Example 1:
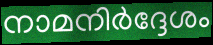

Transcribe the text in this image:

നാമനിർദ്ദേശം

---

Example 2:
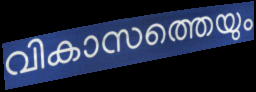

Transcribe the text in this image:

വികാസത്തെയും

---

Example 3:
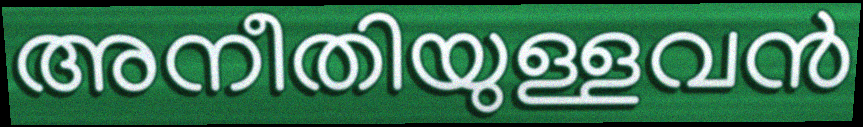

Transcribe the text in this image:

അനീതിയുള്ളവൻ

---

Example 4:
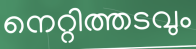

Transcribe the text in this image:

നെറ്റിത്തടവും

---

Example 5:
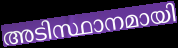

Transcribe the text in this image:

അടിസ്ഥാനമായി